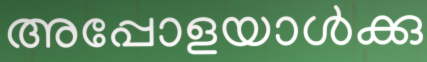
അപ്പോളയാൾക്കു